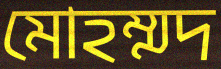
মোহম্মদ